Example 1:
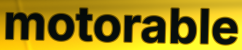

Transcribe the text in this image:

motorable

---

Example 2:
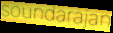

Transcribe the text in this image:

soundarajan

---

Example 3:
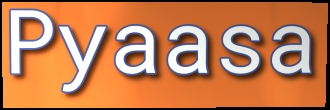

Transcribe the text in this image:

Pyaasa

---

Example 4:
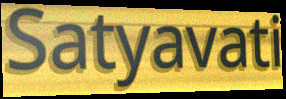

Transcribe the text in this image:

Satyavati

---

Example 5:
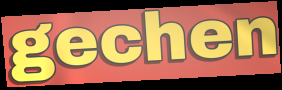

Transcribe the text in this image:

gechen